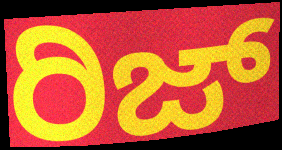
ರಿಜ್